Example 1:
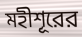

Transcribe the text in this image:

মহীশূরের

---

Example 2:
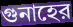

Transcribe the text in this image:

গুনাহের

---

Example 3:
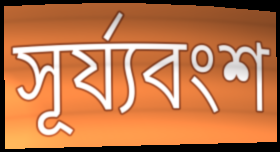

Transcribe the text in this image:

সূর্য্যবংশ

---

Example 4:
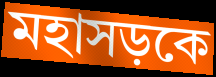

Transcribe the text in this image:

মহাসড়কে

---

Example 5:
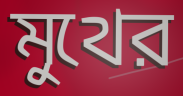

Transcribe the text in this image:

মুথের